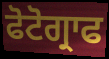
ਫੋਟੋਗ੍ਰਾਫ